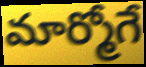
మార్మోగే